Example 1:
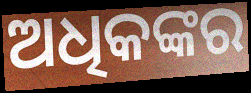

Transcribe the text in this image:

ଅଧିକଙ୍କର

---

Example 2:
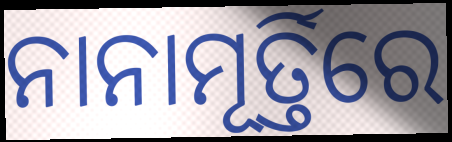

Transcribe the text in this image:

ନାନାମୂର୍ତ୍ତିରେ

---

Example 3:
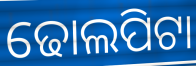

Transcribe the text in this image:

ଢୋଲପିଟା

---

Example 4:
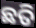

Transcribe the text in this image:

ଛତି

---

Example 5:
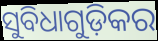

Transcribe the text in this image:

ସୁବିଧାଗୁଡ଼ିକର